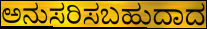
ಅನುಸರಿಸಬಹುದಾದ